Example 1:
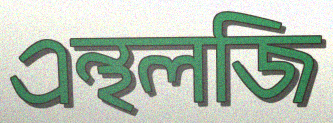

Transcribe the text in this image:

এন্থলজি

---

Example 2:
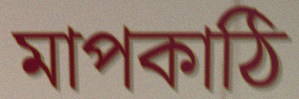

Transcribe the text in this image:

মাপকাঠি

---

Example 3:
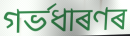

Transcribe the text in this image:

গৰ্ভধাৰণৰ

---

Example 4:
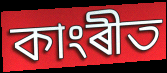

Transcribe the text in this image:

কাংৰীত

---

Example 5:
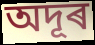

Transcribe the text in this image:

অদূৰ